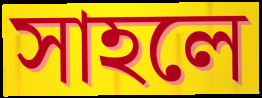
সাহলে